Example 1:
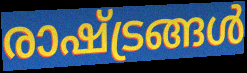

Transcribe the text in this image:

രാഷ്ട്രങ്ങൾ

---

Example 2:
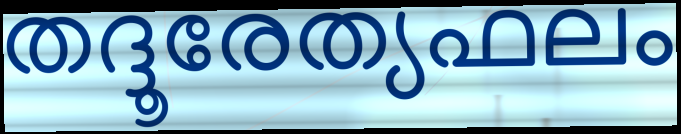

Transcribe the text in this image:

തദ്ദൂരേത്യഫലം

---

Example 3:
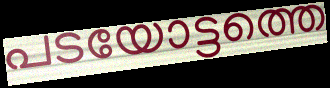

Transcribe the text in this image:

പടയോട്ടത്തെ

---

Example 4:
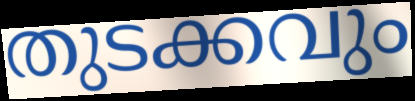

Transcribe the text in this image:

തുടക്കവും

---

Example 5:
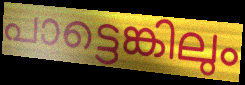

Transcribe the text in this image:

പാട്ടെങ്കിലും